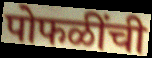
पोफळींची